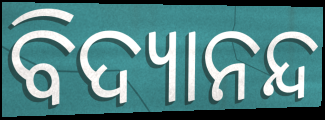
ବିଦ୍ୟାନନ୍ଦ